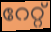
റേറ്റ്